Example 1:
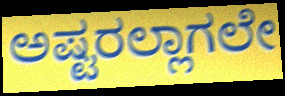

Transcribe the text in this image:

ಅಷ್ಟರಲ್ಲಾಗಲೇ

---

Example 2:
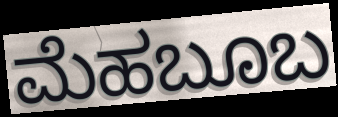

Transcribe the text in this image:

ಮೆಹಬೂಬ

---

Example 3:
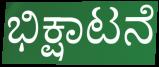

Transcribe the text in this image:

ಭಿಕ್ಷಾಟನೆ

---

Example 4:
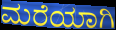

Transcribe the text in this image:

ಮರೆಯಾಗಿ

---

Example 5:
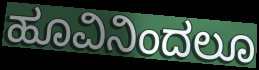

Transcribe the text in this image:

ಹೂವಿನಿಂದಲೂ